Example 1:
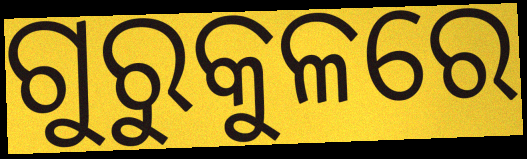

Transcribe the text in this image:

ଗୁରୁକୁଳରେ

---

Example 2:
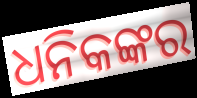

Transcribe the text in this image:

ଧନିକଙ୍କର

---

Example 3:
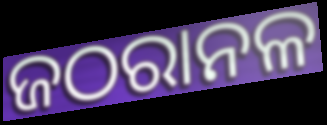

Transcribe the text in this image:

ଜଠରାନଳ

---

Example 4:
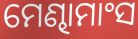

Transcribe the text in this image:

ମେଣ୍ଢାମାଂସ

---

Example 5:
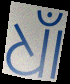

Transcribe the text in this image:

ଧାଁ